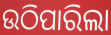
ଉଠିପାରିଲା